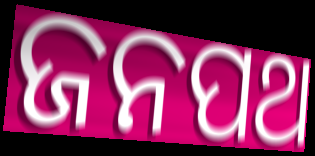
ଜନପଥ